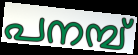
പനമ്പ്